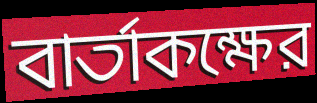
বার্তাকক্ষের